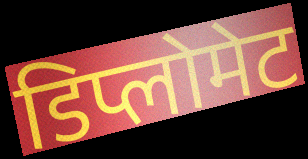
डिप्लोमेट